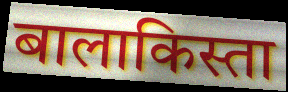
बालाकिस्ता